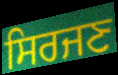
ਸਿਰਜਣ